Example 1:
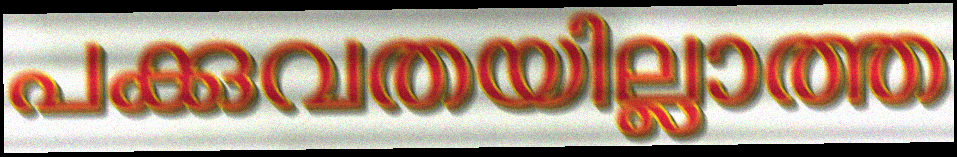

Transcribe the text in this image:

പക്കുവതയില്ലാത്ത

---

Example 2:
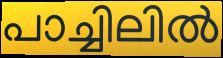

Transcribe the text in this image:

പാച്ചിലിൽ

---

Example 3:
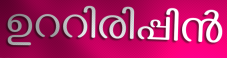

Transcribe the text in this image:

ഉററിരിപ്പിൻ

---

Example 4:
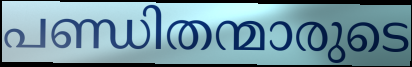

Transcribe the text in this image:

പണ്ഡിതന്മാരുടെ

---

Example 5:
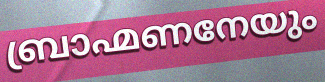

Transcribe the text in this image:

ബ്രാഹ്മണനേയും